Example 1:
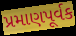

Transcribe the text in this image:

પ્રમાણપૂર્વક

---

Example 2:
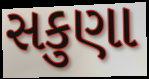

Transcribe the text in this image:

સકુણા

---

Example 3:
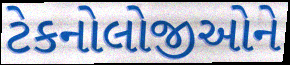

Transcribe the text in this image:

ટેકનોલોજીઓને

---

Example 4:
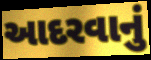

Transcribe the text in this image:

આદરવાનું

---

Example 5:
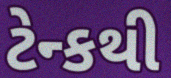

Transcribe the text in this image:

ટેન્કથી